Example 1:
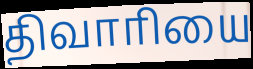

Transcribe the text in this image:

திவாரியை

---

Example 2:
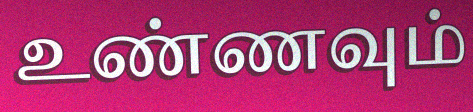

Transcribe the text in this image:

உண்ணவும்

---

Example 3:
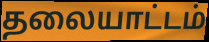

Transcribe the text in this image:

தலையாட்டம்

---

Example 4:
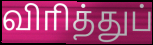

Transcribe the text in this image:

விரித்துப்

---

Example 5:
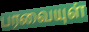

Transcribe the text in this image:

பரவையுள்